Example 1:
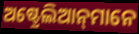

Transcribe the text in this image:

ଅଷ୍ଟ୍ରେଲିଆନ୍‌ମାନେ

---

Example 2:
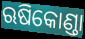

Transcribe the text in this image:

ଋଷିକୋଣ୍ଡା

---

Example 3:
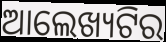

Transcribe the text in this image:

ଆଲେଖ୍ୟଟିର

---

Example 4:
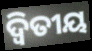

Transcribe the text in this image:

ଦ୍ୱିତୀୟ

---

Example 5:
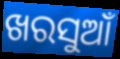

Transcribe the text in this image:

ଖରସୁଆଁ